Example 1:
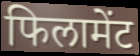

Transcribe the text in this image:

फिलामेंट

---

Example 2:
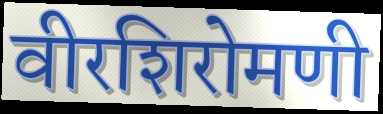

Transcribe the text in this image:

वीरशिरोमणी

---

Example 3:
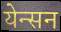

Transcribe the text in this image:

येन्सन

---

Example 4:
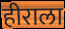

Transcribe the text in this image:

हीराला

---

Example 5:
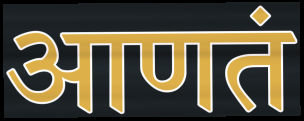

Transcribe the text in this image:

आणतं